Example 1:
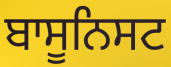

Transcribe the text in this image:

ਬਾਸੂਨਿਸਟ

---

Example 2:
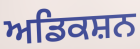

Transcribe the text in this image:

ਅਡਿਕਸ਼ਨ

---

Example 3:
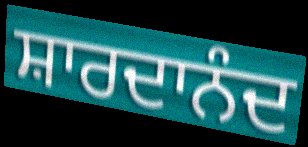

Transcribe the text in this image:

ਸ਼ਾਰਦਾਨੰਦ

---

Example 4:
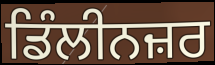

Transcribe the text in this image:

ਡਿੰਲੀਨਜ਼ਰ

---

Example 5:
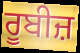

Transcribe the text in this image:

ਰੂਬੀਜ਼